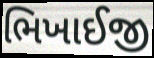
ભિખાઈજી